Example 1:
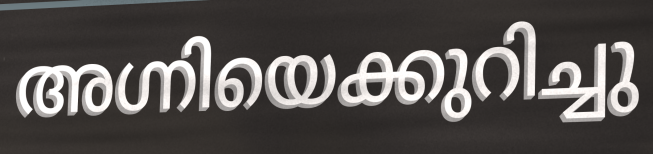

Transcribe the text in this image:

അഗ്നിയെക്കുറിച്ചു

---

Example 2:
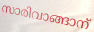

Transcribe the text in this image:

സാരിവാങ്ങാന്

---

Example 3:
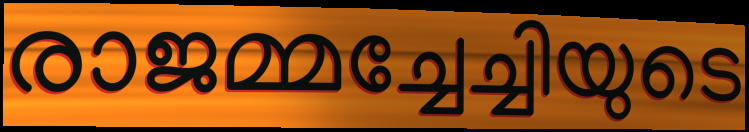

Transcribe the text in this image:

രാജമ്മച്ചേച്ചിയുടെ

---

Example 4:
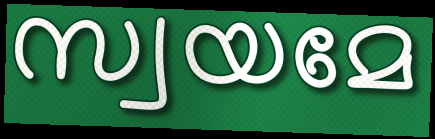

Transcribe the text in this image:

സ്വയമേ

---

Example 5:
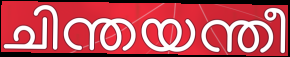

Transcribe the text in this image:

ചിന്തയന്തീ